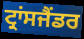
ਟ੍ਰਾਂਸਜੈਂਡਰ